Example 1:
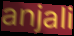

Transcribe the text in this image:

anjali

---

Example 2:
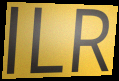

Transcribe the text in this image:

ILR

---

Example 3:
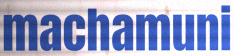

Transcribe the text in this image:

machamuni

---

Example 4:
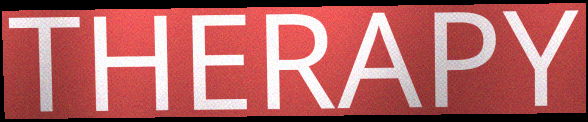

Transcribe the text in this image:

THERAPY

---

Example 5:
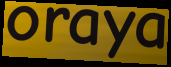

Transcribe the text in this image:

oraya